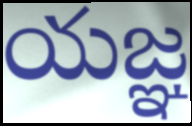
యజ్ఞ